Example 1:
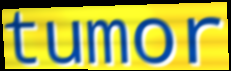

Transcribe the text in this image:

tumor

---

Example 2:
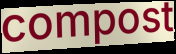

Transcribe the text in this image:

compost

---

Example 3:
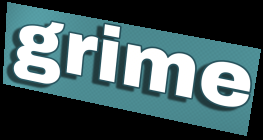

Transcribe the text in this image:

grime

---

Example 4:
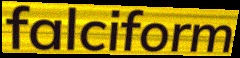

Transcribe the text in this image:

falciform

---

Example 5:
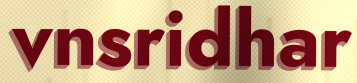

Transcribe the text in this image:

vnsridhar